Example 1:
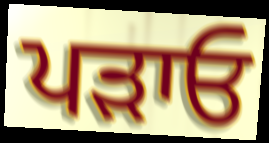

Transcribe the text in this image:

ਪੜਾਓ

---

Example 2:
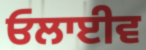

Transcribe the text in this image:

ਓਲਾਈਵ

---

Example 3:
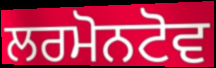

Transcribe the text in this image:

ਲਰਮੋਨਟੋਵ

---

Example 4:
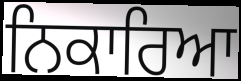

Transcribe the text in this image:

ਨਿਕਾਰਿਆ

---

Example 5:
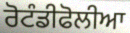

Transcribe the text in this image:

ਰੋਟੰਡੀਫੋਲੀਆ